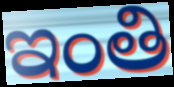
ఇంతి